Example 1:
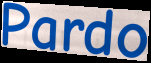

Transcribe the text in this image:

Pardo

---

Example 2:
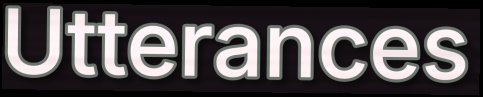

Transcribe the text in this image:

Utterances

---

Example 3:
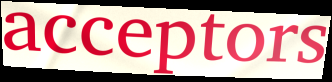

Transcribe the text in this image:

acceptors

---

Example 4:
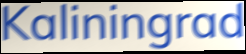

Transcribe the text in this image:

Kaliningrad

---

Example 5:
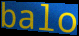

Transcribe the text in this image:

balo